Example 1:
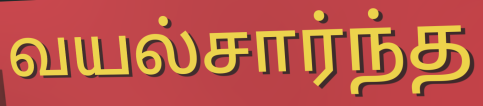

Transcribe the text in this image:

வயல்சார்ந்த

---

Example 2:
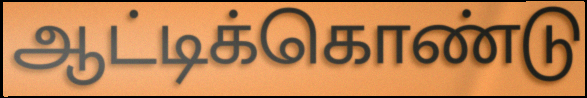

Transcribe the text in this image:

ஆட்டிக்கொண்டு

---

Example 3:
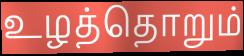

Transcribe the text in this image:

உழத்தொறும்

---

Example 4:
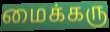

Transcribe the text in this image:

மைக்கரு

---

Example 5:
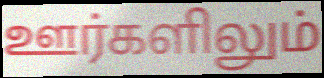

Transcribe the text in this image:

ஊர்களிலும்